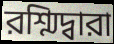
রশ্মিদ্বারা